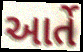
આર્તે